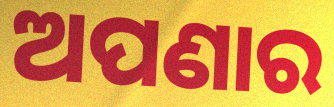
ଅପଣାର